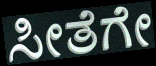
ಸೀತೆಗೇ